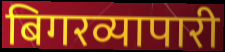
बिगरव्यापारी